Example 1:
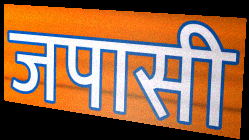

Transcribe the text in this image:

जपासी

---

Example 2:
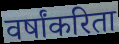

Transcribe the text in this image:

वर्षांकरिता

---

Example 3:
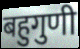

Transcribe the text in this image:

बहुगुणी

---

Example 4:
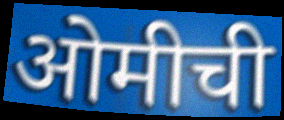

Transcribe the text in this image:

ओमीची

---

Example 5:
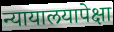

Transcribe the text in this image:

न्यायालयापेक्षा